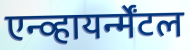
एन्व्हायर्न्मेंटल